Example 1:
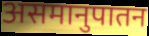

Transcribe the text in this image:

असमानुपातन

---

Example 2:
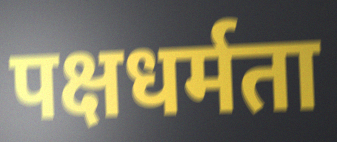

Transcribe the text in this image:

पक्षधर्मता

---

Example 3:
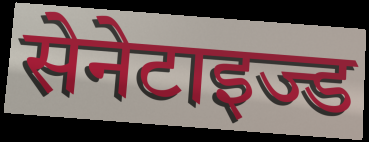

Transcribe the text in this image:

सेनेटाइज्ड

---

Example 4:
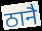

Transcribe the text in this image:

ठानै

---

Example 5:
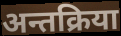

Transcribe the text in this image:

अन्तक्रिया